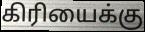
கிரியைக்கு